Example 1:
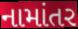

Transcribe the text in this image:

નામાંતર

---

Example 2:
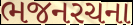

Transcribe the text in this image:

ભજનરચના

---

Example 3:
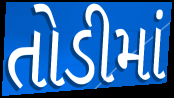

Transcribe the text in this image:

તોડીમાં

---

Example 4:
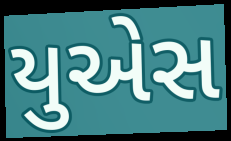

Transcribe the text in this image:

યુએસ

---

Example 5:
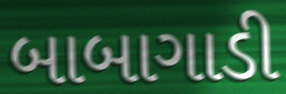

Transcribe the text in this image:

બાબાગાડી